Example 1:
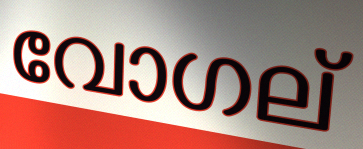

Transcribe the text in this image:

വോഗല്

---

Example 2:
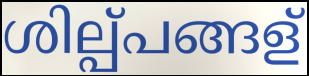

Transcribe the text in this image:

ശില്പ്പങ്ങള്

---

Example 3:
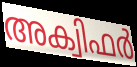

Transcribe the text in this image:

അക്വിഫർ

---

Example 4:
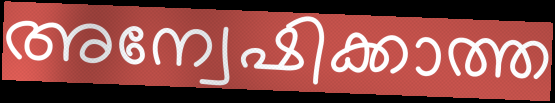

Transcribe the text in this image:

അന്വേഷിക്കാത്ത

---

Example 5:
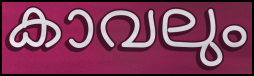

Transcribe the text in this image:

കാവലും